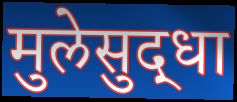
मुलेसुद्धा